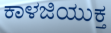
ಕಾಳಜಿಯುಕ್ತ